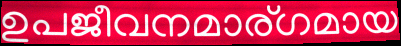
ഉപജീവനമാര്ഗമായ